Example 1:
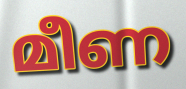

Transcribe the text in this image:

മീണ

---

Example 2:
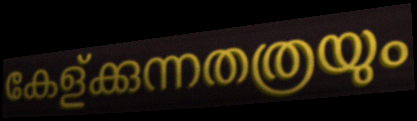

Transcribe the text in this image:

കേള്ക്കുന്നതത്രയും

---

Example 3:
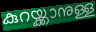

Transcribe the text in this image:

കുറയ്ക്കാനുള്ള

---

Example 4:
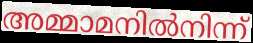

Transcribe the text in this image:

അമ്മാമനിൽനിന്ന്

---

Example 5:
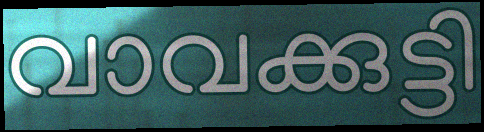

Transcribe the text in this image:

വാവക്കുട്ടി